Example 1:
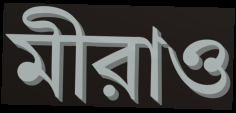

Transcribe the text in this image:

মীরাও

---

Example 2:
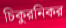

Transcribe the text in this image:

চিকুরনিকর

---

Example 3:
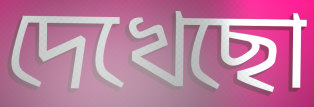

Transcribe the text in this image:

দেখেছো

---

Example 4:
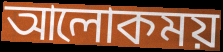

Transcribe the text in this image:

আলোকময়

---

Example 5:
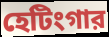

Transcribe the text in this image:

হেটিংগার